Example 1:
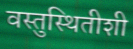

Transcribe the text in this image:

वस्तुस्थितीशी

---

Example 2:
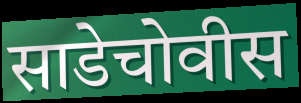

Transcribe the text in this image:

साडेचोवीस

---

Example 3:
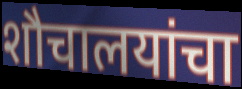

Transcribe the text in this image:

शौचालयांचा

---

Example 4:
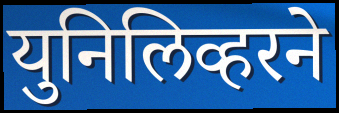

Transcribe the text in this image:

युनिलिव्हरने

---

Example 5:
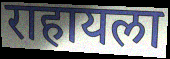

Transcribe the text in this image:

राहायला